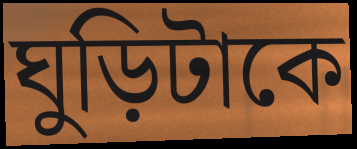
ঘুড়িটাকে